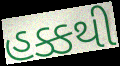
હક્કથી